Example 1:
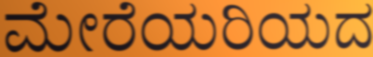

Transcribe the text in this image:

ಮೇರೆಯರಿಯದ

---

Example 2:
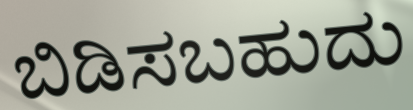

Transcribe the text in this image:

ಬಿಡಿಸಬಹುದು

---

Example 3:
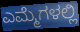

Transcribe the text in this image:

ಎಮ್ಮೆಗಳಲ್ಲಿ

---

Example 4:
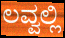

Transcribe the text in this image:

ಲವ್ವಲ್ಲಿ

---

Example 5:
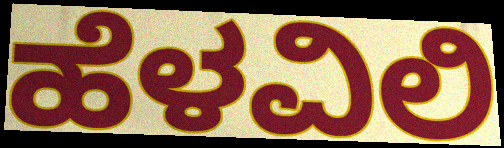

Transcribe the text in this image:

ಹೆಳವಿಲಿ